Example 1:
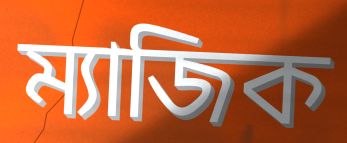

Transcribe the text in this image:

ম্যাজিক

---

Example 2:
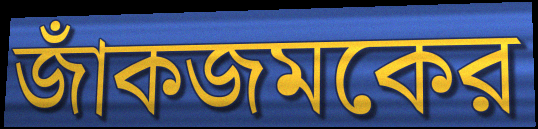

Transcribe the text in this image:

জাঁকজমকের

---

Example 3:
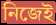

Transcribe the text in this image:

নিজেই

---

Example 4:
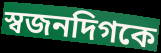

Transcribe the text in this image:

স্বজনদিগকে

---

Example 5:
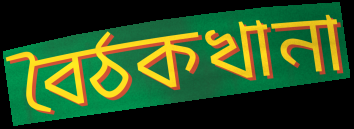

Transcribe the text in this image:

বৈঠকখানা